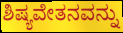
ಶಿಷ್ಯವೇತನವನ್ನು